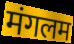
मंगलम